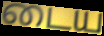
டைய